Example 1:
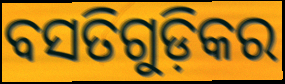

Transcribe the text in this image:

ବସତିଗୁଡ଼ିକର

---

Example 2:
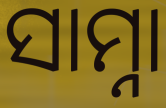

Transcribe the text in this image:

ସାମ୍ନା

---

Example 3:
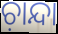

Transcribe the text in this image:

ଚ଼ାନ୍ଦା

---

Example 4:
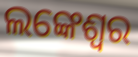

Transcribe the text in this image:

ଲଙ୍କେଶ୍ବର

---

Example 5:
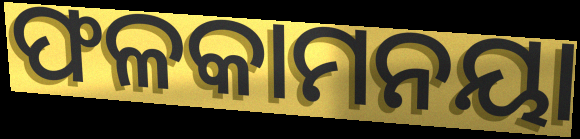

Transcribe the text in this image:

ଫଳକାମନୟା